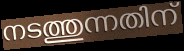
നടത്തുന്നതിന്